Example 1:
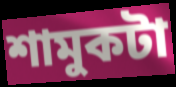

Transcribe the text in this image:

শামুকটা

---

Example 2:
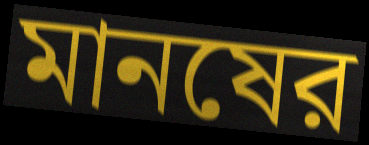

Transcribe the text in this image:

মানষের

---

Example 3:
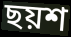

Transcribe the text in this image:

ছয়শ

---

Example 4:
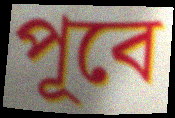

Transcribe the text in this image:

পূবে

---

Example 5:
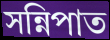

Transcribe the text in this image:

সন্নিপাত